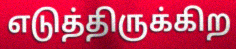
எடுத்திருக்கிற